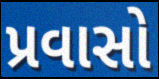
પ્રવાસો